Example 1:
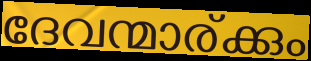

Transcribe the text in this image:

ദേവന്മാര്ക്കും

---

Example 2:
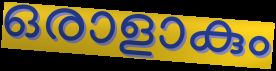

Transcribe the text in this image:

ഒരാളാകും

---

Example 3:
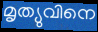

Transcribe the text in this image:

മൃത്യുവിനെ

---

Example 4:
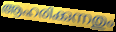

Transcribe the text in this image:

ആഹരിക്കുന്നതും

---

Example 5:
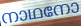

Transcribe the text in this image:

നാഥനോ